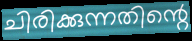
ചിരിക്കുന്നതിന്റെ